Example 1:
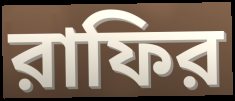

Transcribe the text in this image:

রাফির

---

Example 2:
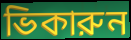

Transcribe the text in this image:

ভিকারুন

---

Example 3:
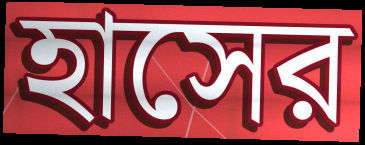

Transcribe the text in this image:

হাসের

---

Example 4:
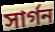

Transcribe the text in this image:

সার্গন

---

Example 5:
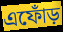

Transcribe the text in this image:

এফোঁড়